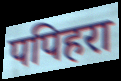
पपिहरा